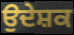
ਉਦੇਸ਼ਕ